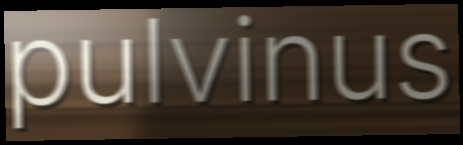
pulvinus